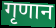
गृणान